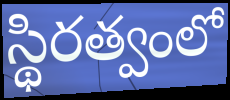
స్థిరత్వంలో